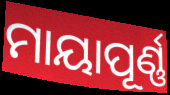
ମାୟାପୂର୍ଣ୍ଣ